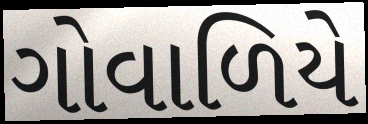
ગોવાળિયે